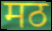
मठ